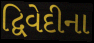
દ્વિવેદીના